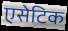
एसेटिक